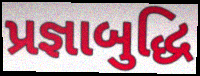
પ્રજ્ઞાબુદ્ધિ